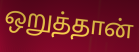
ஒறுத்தான்